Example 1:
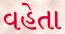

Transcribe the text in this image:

વહેતા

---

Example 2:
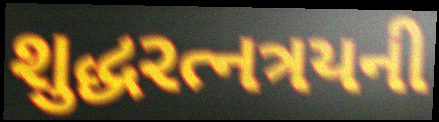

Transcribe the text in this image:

શુદ્ધરત્નત્રયની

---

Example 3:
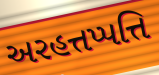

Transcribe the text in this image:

અરહત્તપ્પત્તિ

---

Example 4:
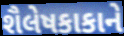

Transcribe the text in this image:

શૈલેષકાકાને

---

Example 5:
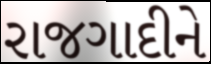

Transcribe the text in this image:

રાજગાદીને